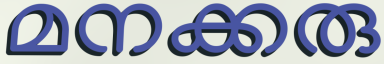
മനക്കരു